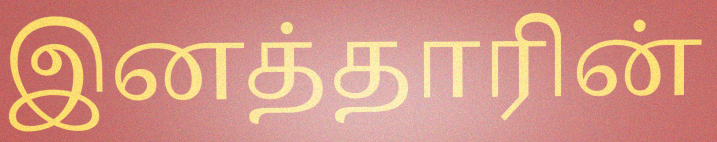
இனத்தாரின்